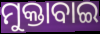
ମୁକ୍ତାବାଇ